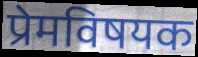
प्रेमविषयक